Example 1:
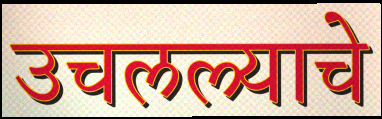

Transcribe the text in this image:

उचलल्याचे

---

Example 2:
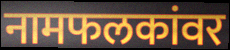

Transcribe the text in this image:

नामफलकांवर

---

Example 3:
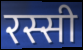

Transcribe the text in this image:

रस्सी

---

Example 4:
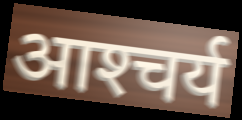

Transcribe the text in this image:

आश्‍चर्य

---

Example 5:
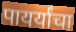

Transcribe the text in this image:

पायर्यांचा